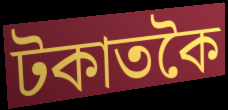
টকাতকৈ